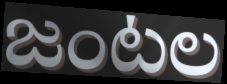
జంటల